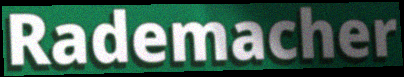
Rademacher